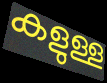
കളുള്ള